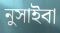
নুসাইবা